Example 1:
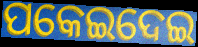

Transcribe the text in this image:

ପକେଇଦେଇ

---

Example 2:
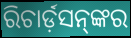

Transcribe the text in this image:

ରିଚାର୍ଡ଼ସନ୍‌ଙ୍କର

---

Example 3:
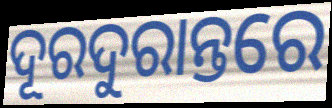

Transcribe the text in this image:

ଦୂରଦୁରାନ୍ତରେ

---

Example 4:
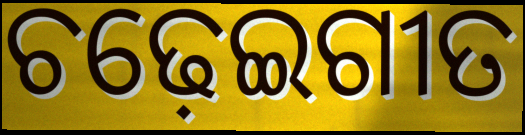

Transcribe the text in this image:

ଚଢ଼େଇଗୀତ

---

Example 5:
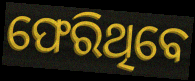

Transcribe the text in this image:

ଫେରିଥିବେ